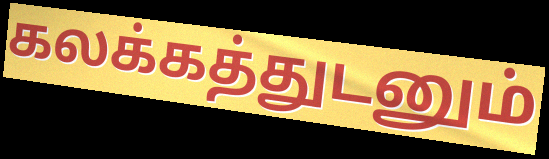
கலக்கத்துடனும்